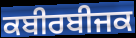
ਕਬੀਰਬੀਜਕ